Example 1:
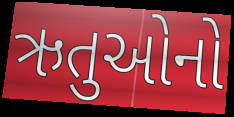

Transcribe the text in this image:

ઋતુઓનો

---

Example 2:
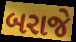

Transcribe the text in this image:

બરાજે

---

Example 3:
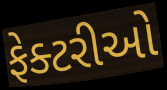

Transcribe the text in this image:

ફેક્ટરીઓ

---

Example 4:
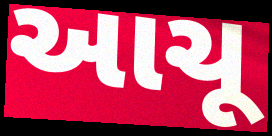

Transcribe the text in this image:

આચૂ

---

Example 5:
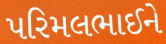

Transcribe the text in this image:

પરિમલભાઈને